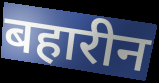
बहारीन